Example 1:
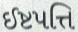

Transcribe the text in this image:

ઈષ્ટપત્તિ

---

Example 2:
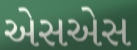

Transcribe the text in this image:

એસએસ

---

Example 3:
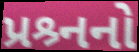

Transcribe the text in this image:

પ્રશ્ર્નનો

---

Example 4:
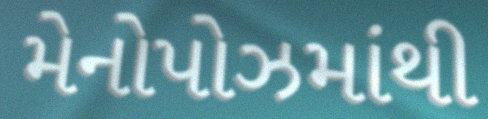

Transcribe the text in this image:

મેનોપોઝમાંથી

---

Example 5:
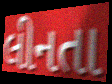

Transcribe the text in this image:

લીનતા